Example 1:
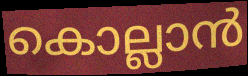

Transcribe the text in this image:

കൊല്ലാൻ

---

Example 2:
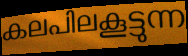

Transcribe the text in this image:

കലപിലകൂട്ടുന്ന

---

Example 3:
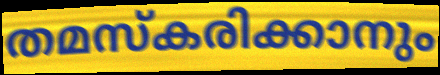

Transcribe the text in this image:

തമസ്കരിക്കാനും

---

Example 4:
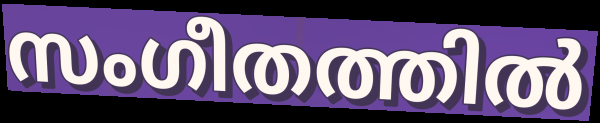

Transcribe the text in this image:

സംഗീതത്തിൽ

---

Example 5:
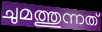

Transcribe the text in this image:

ചുമത്തുന്നത്